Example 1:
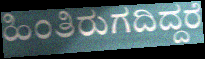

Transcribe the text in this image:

ಹಿಂತಿರುಗದಿದ್ದರೆ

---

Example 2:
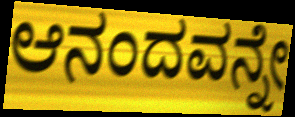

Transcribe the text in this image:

ಆನಂದವನ್ನೇ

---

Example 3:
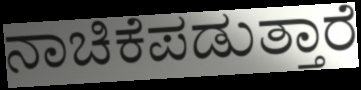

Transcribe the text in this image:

ನಾಚಿಕೆಪಡುತ್ತಾರೆ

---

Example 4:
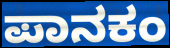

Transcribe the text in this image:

ಪಾನಕಂ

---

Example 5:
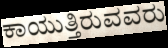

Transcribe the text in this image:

ಕಾಯುತ್ತಿರುವವರು